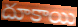
దూకాయి